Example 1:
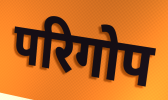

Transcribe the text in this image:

परिगोप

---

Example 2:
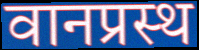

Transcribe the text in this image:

वानप्रस्थ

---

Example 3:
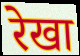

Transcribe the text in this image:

रेखा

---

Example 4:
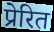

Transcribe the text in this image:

प्रेरित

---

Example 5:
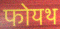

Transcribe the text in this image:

फोयथ